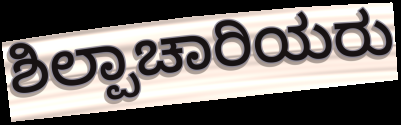
ಶಿಲ್ಪಾಚಾರಿಯರು